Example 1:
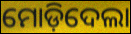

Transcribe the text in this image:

ମୋଡ଼ିଦେଲା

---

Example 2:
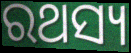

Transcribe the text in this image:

ରଥସ୍ୟ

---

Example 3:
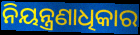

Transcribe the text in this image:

ନିୟନ୍ତ୍ରଣାଧିକାର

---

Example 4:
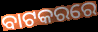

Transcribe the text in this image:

ବାଟକରରେ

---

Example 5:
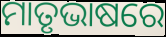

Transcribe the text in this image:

ମାତୃଭାଷରେ